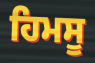
ਹਿਮਸੂ